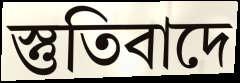
স্তুতিবাদে